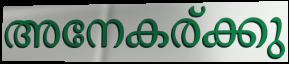
അനേകര്ക്കു